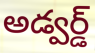
అడ్వర్డ్